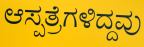
ಆಸ್ಪತ್ರೆಗಳಿದ್ದವು